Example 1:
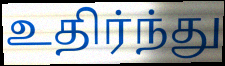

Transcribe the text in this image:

உதிர்ந்து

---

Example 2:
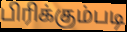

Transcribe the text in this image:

பிரிக்கும்படி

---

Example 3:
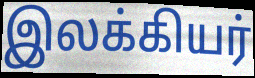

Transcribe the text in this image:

இலக்கியர்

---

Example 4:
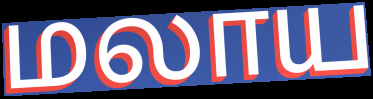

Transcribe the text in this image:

மலாய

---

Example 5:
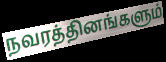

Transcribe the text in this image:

நவரத்தினங்களும்